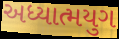
અધ્યાત્મયુગ